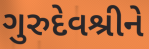
ગુરુદેવશ્રીને